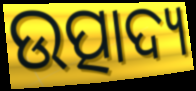
ଉତ୍ପାଦ୍ୟ